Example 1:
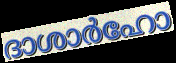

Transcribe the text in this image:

ദാശാർഹോ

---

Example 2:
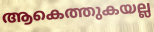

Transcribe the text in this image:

ആകെത്തുകയല്ല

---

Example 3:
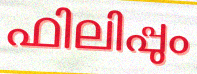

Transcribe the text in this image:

ഫിലിപ്പും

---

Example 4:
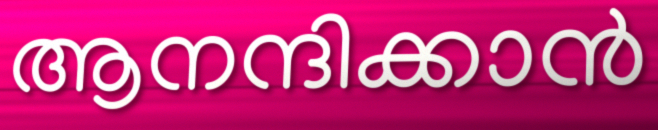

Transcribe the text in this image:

ആനന്ദിക്കാൻ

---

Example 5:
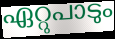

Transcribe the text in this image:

ഏറ്റുപാടും